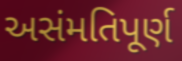
અસંમતિપૂર્ણ